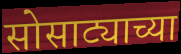
सोसाट्याच्या